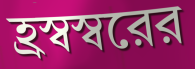
হ্রস্বস্বরের